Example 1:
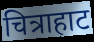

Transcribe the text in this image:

चित्राहाट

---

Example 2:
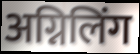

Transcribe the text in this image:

अग्निलिंग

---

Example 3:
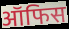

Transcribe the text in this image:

ऑफिस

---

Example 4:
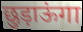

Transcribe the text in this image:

छुड़ाऊंगा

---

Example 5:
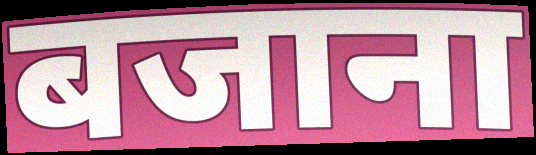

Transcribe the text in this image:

बजाना